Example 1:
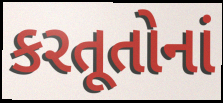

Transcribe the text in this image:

કરતૂતોનાં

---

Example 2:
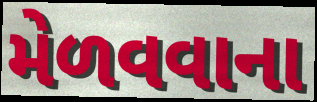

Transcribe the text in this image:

મેળવવાના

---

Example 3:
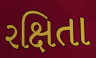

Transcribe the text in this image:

રક્ષિતા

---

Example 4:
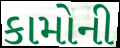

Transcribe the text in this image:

કામોની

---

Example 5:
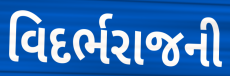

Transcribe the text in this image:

વિદર્ભરાજની